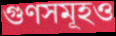
গুণসমূহও